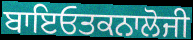
ਬਾਇਓਤਕਨਾਲੋਜੀ